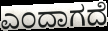
ಎಂದಾಗದೆ